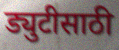
ड्युटीसाठी